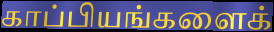
காப்பியங்களைக்